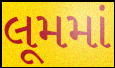
લૂમમાં